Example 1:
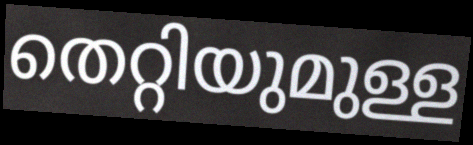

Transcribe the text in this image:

തെറ്റിയുമുള്ള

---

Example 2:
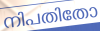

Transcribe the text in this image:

നിപതിതോ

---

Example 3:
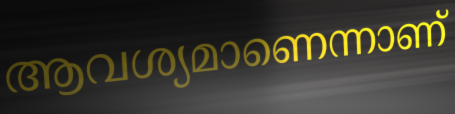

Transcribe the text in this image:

ആവശ്യമാണെന്നാണ്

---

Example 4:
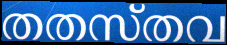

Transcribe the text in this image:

തതസ്തവ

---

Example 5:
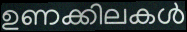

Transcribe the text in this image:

ഉണക്കിലകൾ